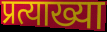
प्रत्याख्या